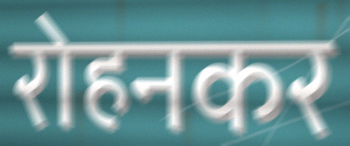
रोहनकर